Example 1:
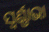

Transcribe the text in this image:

ସ୍ୱର୍ଣ୍ଣାଭା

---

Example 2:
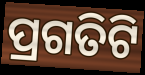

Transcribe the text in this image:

ପ୍ରଗତିଟି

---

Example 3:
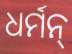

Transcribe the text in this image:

ଧର୍ମନ୍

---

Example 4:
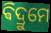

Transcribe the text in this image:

ଵିଦ୍ରୁମେ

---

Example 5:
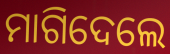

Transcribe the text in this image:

ମାଗିଦେଲେ